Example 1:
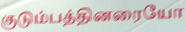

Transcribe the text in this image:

குடும்பத்தினரையோ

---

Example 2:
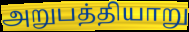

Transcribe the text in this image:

அறுபத்தியாறு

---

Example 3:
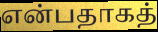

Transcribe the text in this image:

என்பதாகத்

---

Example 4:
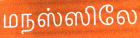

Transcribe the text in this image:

மநஸ்ஸிலே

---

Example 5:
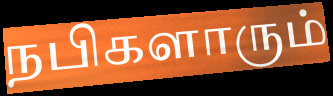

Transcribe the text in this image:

நபிகளாரும்